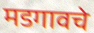
मडगावचे